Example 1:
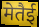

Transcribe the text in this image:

मेतैई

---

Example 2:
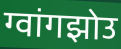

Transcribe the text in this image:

ग्वांगझोउ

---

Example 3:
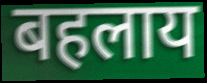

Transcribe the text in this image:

बहलाय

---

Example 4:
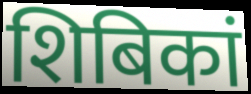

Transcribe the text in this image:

शिबिकां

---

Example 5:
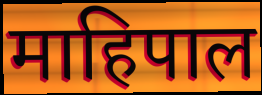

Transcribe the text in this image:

माहिपाल